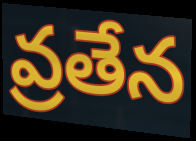
వ్రతేన